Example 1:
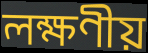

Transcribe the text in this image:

লক্ষণীয়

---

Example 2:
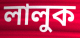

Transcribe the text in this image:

লালুক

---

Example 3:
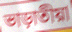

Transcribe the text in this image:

ভাড়াতীয়া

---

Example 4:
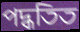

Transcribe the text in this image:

পদ্ধতিত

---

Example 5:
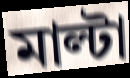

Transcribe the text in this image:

মাল্টা